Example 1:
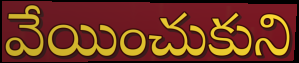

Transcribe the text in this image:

వేయించుకుని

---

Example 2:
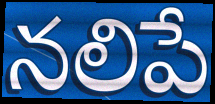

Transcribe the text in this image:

నలిపే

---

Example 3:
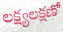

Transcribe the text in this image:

లక్ష్యలక్షణో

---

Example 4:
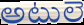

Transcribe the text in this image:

అటులె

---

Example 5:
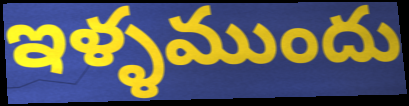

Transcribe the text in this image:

ఇళ్ళముందు